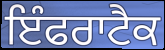
ਇੰਫਰਾਟੈਕ